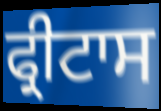
ਫ੍ਰੀਟਾਸ